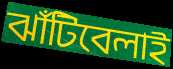
ঝাঁটিবেলাই